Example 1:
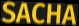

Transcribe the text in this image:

SACHA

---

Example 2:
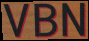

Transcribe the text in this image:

VBN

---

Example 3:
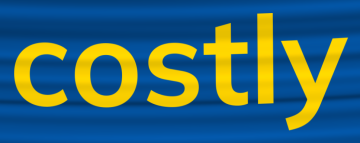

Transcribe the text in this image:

costly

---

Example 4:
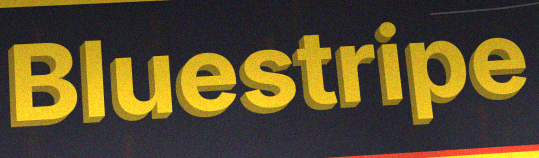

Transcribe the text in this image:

Bluestripe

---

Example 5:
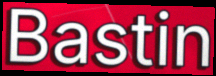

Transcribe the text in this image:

Bastin